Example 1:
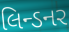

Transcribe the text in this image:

લિન્ડનર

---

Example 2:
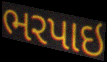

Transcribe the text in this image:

ભરપાઇ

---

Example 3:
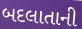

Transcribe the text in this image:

બદલાતાની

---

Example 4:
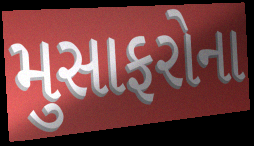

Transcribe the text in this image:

મુસાફરોના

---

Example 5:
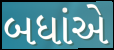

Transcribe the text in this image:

બધાંએ